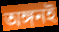
অঙ্গনই